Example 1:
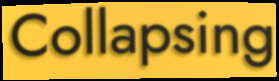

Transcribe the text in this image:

Collapsing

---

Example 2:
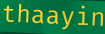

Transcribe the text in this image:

thaayin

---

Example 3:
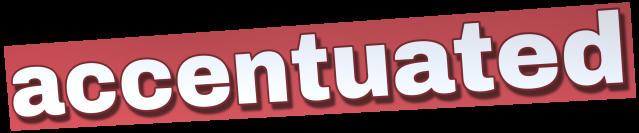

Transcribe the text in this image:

accentuated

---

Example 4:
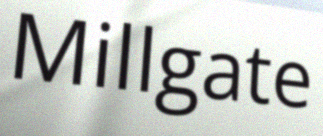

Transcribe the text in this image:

Millgate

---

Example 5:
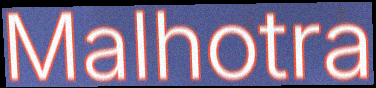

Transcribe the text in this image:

Malhotra